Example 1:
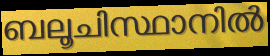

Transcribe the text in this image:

ബലൂചിസ്ഥാനിൽ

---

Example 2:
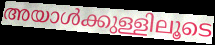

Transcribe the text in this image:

അയാൾക്കുള്ളിലൂടെ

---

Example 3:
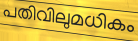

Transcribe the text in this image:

പതിവിലുമധികം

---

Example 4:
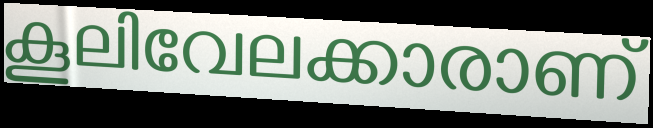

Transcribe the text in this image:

കൂലിവേലക്കാരാണ്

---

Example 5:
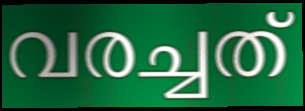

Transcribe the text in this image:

വരച്ചത്